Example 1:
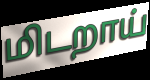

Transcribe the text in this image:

மிடறாய்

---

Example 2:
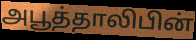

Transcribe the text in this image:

அபூத்தாலிபின்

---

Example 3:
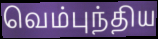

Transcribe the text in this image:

வெம்புந்திய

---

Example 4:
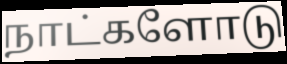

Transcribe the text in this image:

நாட்களோடு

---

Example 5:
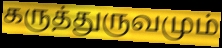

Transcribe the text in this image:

கருத்துருவமும்